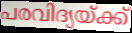
പരവിദ്യയ്ക്ക്